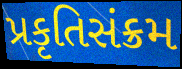
પ્રકૃતિસંક્રમ